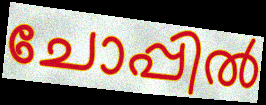
ചോപ്പിൽ